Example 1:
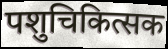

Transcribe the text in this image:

पशुचिकित्सक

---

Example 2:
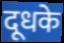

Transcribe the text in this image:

दूधके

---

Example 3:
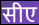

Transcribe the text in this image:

सीए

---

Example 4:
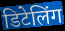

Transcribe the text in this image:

डिटेलिंग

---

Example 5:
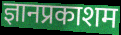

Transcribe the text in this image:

ज्ञानप्रकाशम